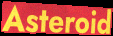
Asteroid